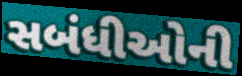
સબંધીઓની